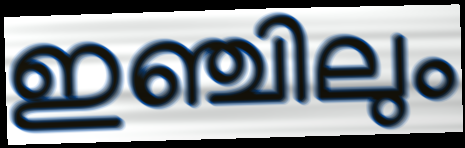
ഇഞ്ചിലും